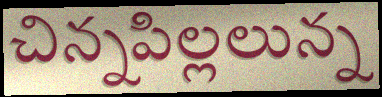
చిన్నపిల్లలున్న